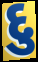
દુ